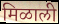
मिळाली